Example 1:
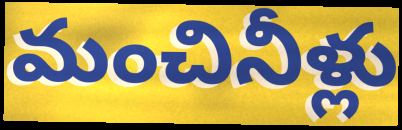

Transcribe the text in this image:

మంచినీళ్లు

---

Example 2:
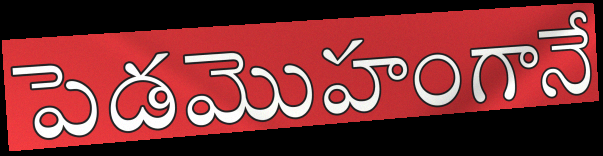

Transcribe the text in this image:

పెడమొహంగానే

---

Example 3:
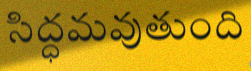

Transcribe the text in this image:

సిద్ధమవుతుంది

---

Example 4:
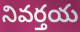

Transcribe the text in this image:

నివర్తయ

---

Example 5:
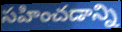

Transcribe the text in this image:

సహించడాన్ని